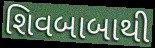
શિવબાબાથી